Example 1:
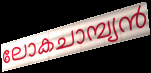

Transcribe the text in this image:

ലോകചാമ്പ്യൻ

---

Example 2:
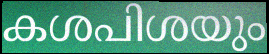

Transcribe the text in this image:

കശപിശയും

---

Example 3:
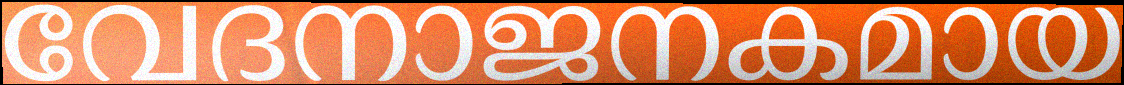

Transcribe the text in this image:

വേദനാജനകമായ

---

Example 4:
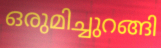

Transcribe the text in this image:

ഒരുമിച്ചുറങ്ങി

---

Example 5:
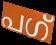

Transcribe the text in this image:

പഗ്